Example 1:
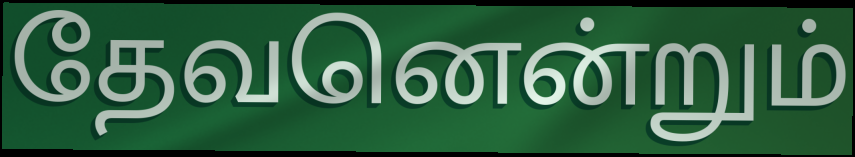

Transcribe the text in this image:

தேவனென்றும்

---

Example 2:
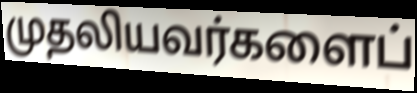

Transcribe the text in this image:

முதலியவர்களைப்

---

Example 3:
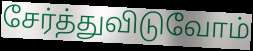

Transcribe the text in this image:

சேர்த்துவிடுவோம்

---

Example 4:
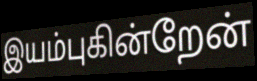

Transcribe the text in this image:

இயம்புகின்றேன்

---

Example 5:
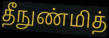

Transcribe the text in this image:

தீநுண்மித்